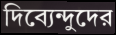
দিব্যেন্দুদের